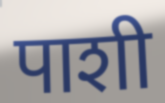
पाशी